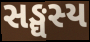
સઙ્ઘસ્ય